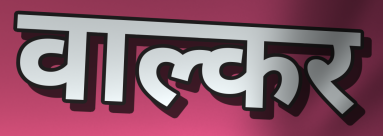
वाल्कर